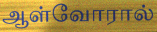
ஆள்வோரால்